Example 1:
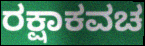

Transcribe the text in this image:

ರಕ್ಷಾಕವಚ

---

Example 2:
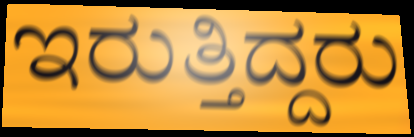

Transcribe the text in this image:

ಇರುತ್ತಿದ್ದರು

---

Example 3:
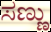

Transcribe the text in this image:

ಸಣ್ಣು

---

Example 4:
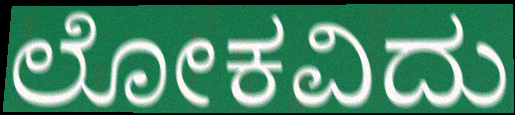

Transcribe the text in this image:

ಲೋಕವಿದು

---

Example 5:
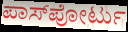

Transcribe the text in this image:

ಪಾಸ್‌ಪೋರ್ಟು